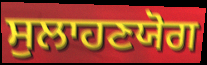
ਸੁਲਾਹਣਯੋਗ